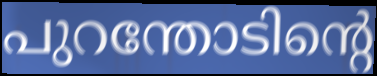
പുറന്തോടിന്റെ